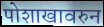
पोशाखावरुन